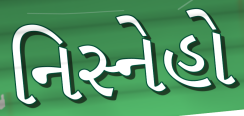
નિસ્નેહો